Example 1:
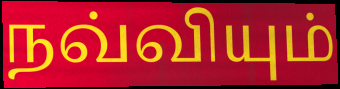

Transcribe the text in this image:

நவ்வியும்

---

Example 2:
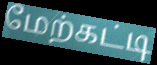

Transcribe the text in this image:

மேற்கட்டி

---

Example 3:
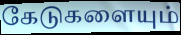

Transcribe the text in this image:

கேடுகளையும்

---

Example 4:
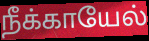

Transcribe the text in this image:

நீக்காயேல்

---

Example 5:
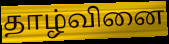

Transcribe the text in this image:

தாழ்வினை